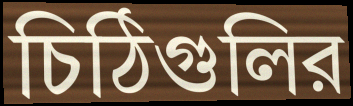
চিঠিগুলির